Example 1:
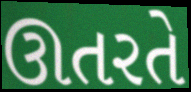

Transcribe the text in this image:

ઊતરતે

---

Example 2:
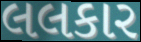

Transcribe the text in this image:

લલકાર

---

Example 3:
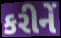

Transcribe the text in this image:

કરીનેં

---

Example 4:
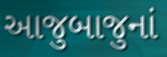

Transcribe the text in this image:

આજુબાજુનાં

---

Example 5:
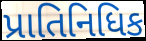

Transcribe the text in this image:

પ્રાતિનિધિક